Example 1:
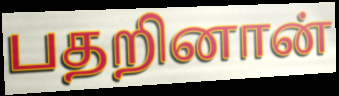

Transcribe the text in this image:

பதறினான்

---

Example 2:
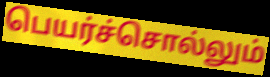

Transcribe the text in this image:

பெயர்ச்சொல்லும்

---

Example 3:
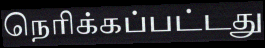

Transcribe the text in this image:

நெரிக்கப்பட்டது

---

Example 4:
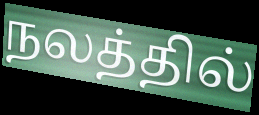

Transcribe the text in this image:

நலத்தில்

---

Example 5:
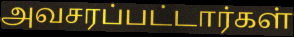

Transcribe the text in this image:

அவசரப்பட்டார்கள்